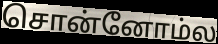
சொன்னோம்ல